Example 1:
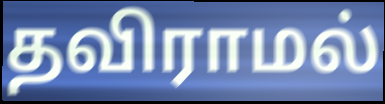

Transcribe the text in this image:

தவிராமல்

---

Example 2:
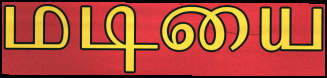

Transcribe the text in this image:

மடியை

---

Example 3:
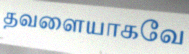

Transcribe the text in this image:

தவளையாகவே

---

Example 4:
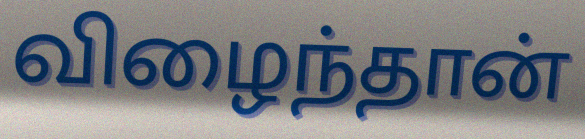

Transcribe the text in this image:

விழைந்தான்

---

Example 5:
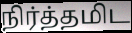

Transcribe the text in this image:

நிர்த்தமிட